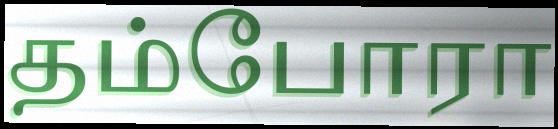
தம்போரா